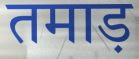
तमाड़